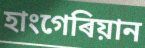
হাংগেৰিয়ান